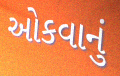
ઓકવાનું